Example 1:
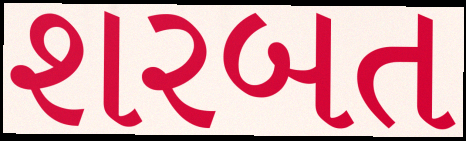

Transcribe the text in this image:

શરબત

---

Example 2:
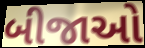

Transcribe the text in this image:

બીજાઓ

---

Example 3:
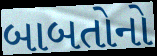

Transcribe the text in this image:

બાબતોનો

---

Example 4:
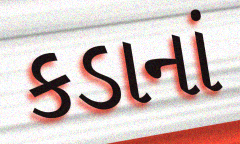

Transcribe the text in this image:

કડાનાં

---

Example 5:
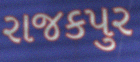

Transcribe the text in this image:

રાજકપુર